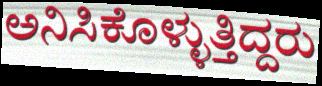
ಅನಿಸಿಕೊಳ್ಳುತ್ತಿದ್ದರು